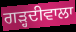
ਗਡ਼੍ਹਦੀਵਾਲਾ